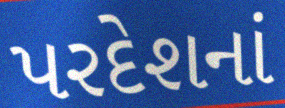
પરદેશનાં